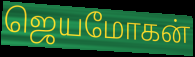
ஜெயமோகன்